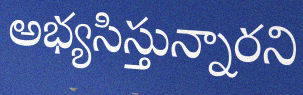
అభ్యసిస్తున్నారని